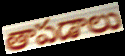
తాపడాలు